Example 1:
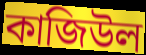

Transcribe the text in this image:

কাজিউল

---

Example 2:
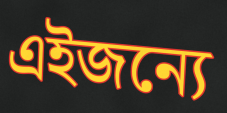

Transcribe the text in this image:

এইজন্যে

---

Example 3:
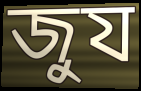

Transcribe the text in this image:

জুয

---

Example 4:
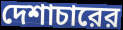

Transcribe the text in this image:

দেশাচারের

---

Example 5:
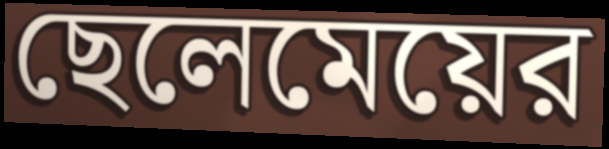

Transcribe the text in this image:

ছেলেমেয়ের